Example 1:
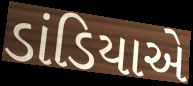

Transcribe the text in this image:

ડાંડિયાએ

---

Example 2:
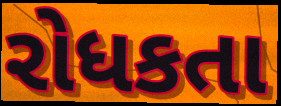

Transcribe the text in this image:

રોધકતા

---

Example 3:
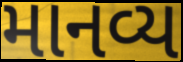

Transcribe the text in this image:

માનવ્ય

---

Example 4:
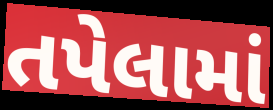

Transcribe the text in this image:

તપેલામાં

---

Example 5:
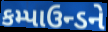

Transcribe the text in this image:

કમ્પાઉન્ડને